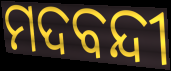
ମଦବନ୍ଦୀ